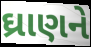
ઘ્રાણને